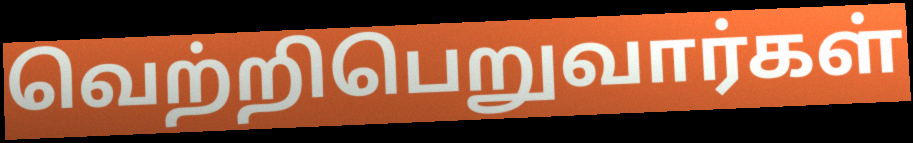
வெற்றிபெறுவார்கள்